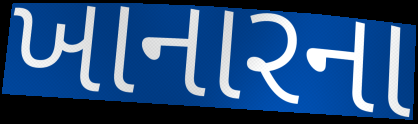
ખાનારના